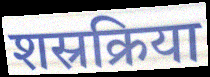
शस्रक्रिया